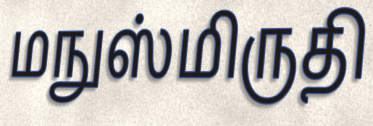
மநுஸ்மிருதி